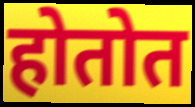
होतोत